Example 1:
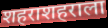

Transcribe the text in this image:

शहराशहराला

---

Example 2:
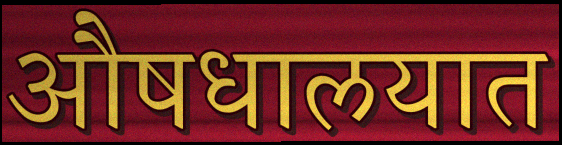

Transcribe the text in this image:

औषधालयात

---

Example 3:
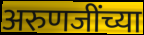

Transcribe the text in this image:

अरुणजींच्या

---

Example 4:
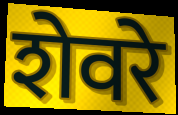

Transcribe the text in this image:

शेवरे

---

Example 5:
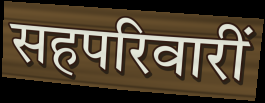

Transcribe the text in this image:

सहपरिवारीं